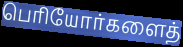
பெரியோர்களைத்